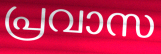
പ്രവാസ